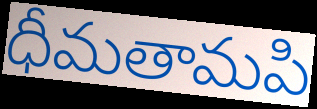
ధీమతామపి